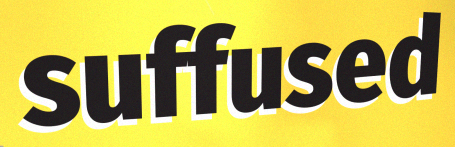
suffused